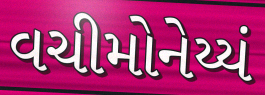
વચીમોનેય્યં